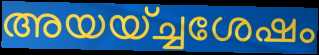
അയയ്ച്ചശേഷം